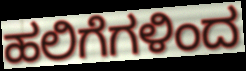
ಹಲಿಗೆಗಳಿಂದ